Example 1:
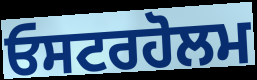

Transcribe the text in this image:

ਓਸਟਰਹੋਲਮ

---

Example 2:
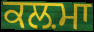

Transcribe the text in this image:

ਕਲ਼ਮਾ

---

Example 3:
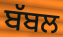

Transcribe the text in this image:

ਬੱਬਲ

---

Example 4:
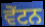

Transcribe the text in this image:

ਵੋਂਟਨ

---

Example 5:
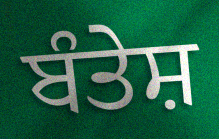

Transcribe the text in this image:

ਬੰਤੇਸ਼